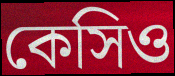
কেসিও